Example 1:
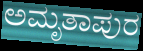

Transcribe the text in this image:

ಅಮೃತಾಪುರ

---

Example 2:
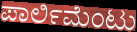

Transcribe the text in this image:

ಪಾರ್ಲಿಮೆಂಟು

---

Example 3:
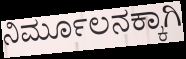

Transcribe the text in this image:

ನಿರ್ಮೂಲನಕ್ಕಾಗಿ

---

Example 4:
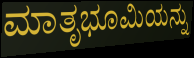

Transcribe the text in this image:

ಮಾತೃಭೂಮಿಯನ್ನು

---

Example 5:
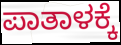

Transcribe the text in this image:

ಪಾತಾಳಕ್ಕೆ